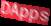
DApps